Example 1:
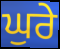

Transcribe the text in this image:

ਘੁਰੇ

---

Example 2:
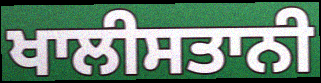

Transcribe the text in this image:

ਖਾਲੀਸਤਾਨੀ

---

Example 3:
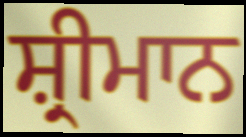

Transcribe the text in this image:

ਸ਼੍ਰੀਮਾਨ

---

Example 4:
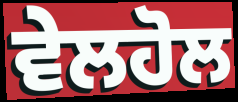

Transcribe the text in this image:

ਵੇਲਹੋਲ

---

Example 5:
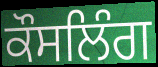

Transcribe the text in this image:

ਕੌਸਲਿੰਗ